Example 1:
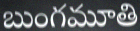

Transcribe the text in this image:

బుంగమూతి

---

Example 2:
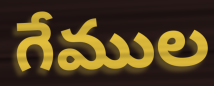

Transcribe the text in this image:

గేముల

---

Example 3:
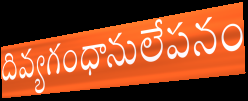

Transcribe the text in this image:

దివ్యగంధానులేపనం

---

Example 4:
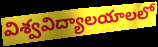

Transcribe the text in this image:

విశ్వవిద్యాలయాలలో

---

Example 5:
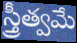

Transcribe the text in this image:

స్త్రీత్వమే